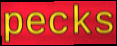
pecks